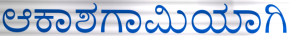
ಆಕಾಶಗಾಮಿಯಾಗಿ